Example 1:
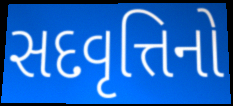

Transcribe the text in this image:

સદવૃત્તિનો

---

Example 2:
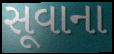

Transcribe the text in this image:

સૂવાના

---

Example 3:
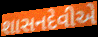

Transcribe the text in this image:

શાસનદેવીએ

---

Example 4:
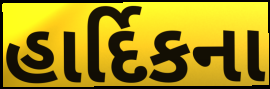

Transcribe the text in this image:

હાર્દિકના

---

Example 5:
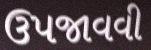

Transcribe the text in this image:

ઉપજાવવી